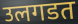
उलगडत